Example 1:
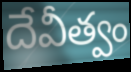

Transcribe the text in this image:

దేవీత్వం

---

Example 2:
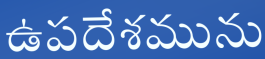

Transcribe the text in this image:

ఉపదేశమును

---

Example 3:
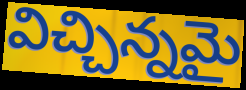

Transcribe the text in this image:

విచ్చిన్నమై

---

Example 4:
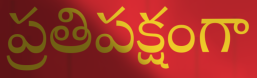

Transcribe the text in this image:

ప్రతిపక్షంగా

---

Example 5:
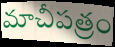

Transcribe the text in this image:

మాచీపత్రం